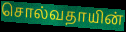
சொல்வதாயின்